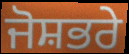
ਜੋਸ਼ਭਰੇ